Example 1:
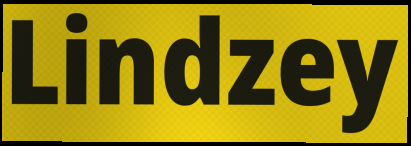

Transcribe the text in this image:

Lindzey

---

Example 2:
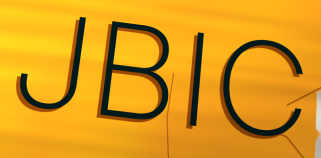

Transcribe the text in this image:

JBIC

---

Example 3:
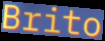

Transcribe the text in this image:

Brito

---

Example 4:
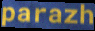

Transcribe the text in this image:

parazh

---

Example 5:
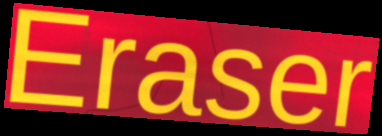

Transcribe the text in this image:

Eraser